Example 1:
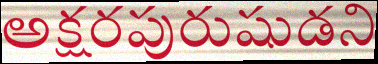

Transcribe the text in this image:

అక్షరపురుషుడని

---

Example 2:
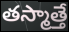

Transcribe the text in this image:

తస్మాత్తే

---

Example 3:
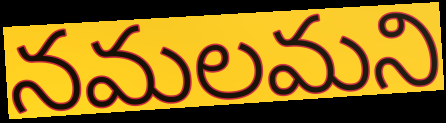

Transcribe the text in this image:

నమలమని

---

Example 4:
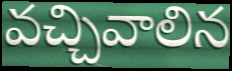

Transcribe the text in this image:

వచ్చివాలిన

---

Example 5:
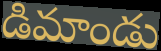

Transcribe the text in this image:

డిమాండు